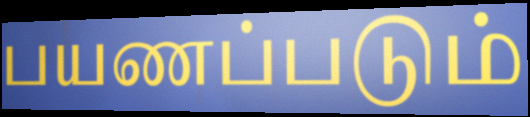
பயணப்படும்